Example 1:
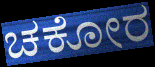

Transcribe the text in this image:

ಚಕೋರ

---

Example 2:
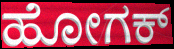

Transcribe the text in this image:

ಹೋಗಕ್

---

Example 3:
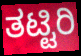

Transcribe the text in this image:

ತಟ್ಟಿರಿ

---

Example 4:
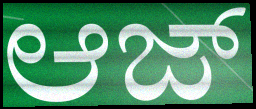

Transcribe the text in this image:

ಆಜ್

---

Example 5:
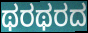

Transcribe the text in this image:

ಥರಥರದ